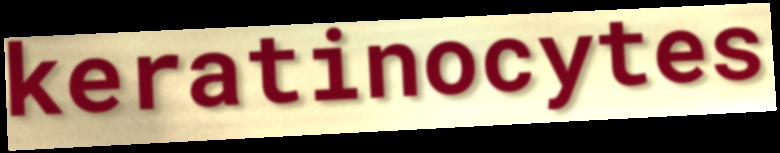
keratinocytes